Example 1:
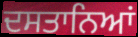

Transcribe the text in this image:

ਦਸਤਾਨਿਆਂ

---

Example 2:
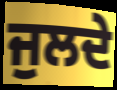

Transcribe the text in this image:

ਜੁਲਦੇ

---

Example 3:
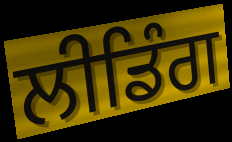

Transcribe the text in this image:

ਲੀਡਿੰਗ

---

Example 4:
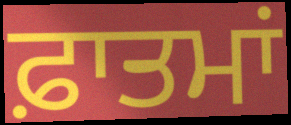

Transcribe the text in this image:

ਫ਼ਾਤਮਾਂ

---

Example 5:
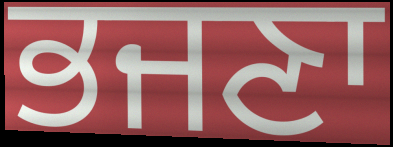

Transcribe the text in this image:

ਭਜਣਾ